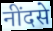
नींदसे